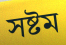
সষ্টম